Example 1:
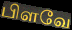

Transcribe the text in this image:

பிளவே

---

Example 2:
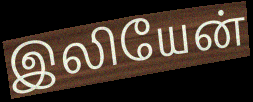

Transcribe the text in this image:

இலியேன்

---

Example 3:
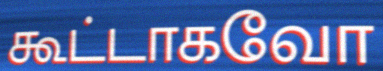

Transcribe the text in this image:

கூட்டாகவோ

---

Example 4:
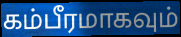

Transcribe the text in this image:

கம்பீரமாகவும்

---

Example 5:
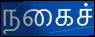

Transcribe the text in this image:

நகைச்